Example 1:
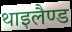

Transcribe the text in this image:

थाइलैण्ड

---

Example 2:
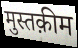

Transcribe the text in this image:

मुस्तक़ीम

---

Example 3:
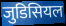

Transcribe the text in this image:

जुडिसियल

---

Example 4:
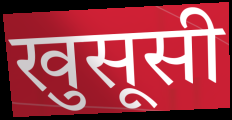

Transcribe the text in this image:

खुसूसी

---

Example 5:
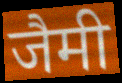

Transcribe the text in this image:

जैमी